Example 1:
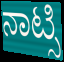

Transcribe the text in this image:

ನಾಟ್ಸಿ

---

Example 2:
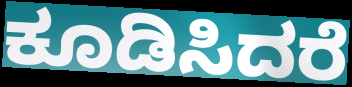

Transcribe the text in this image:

ಕೂಡಿಸಿದರೆ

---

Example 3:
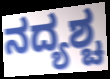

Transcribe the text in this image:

ನದ್ಯಶ್ಚ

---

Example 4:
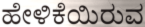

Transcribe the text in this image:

ಹೇಳಿಕೆಯಿರುವ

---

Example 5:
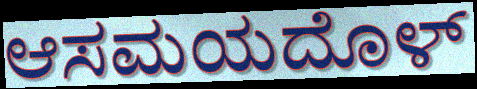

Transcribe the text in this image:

ಆಸಮಯದೊಳ್